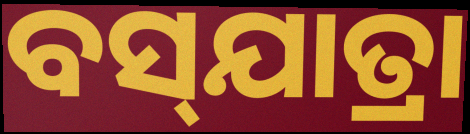
ବସ୍‌ଯାତ୍ରା